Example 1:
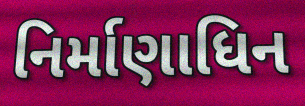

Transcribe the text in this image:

નિર્માણાધિન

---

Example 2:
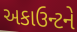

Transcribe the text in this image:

અકાઉન્ટને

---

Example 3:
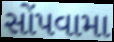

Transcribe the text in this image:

સોંપવામા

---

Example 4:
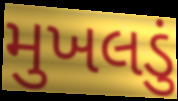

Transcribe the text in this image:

મુખલડું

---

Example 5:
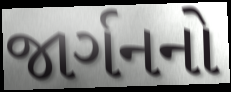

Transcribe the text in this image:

જાર્ગનનો